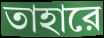
তাহারে